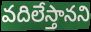
వదిలేస్తానని